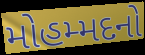
મોહમ્મદનો